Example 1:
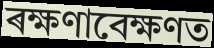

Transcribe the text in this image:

ৰক্ষণাবেক্ষণত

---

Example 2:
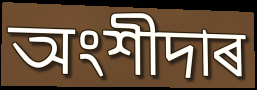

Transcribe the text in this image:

অংশীদাৰ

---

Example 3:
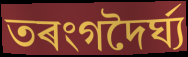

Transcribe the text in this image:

তৰংগদৈৰ্ঘ্য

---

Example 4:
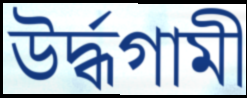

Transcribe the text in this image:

উৰ্দ্ধগামী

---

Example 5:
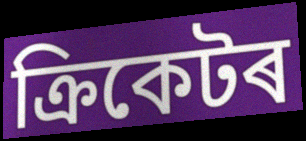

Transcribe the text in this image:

ক্ৰিকেটৰ